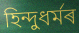
হিন্দুধৰ্মৰ